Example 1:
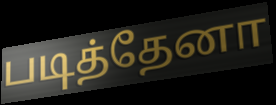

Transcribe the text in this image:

படித்தேனா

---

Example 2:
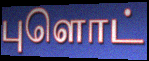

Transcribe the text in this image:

புளொட்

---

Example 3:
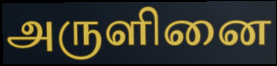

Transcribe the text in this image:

அருளினை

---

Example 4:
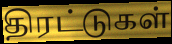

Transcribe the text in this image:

திரட்டுகள்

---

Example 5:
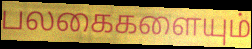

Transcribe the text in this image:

பலகைகளையும்